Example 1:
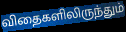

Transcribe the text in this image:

விதைகளிலிருந்தும்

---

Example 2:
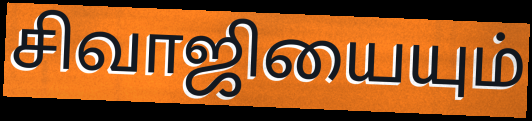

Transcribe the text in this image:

சிவாஜியையும்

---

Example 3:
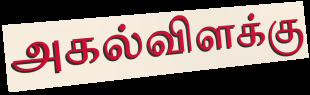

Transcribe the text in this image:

அகல்விளக்கு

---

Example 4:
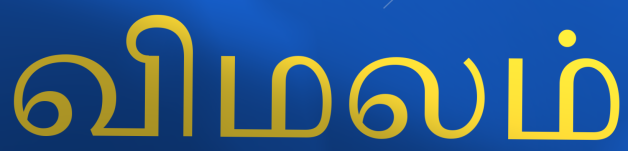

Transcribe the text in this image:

விமலம்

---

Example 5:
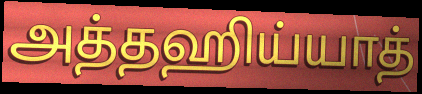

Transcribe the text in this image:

அத்தஹிய்யாத்